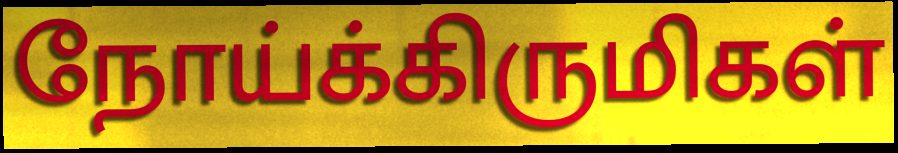
நோய்க்கிருமிகள்